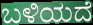
ಬಳಿಯದೆ